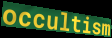
occultism